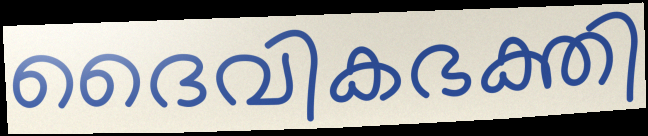
ദൈവികഭക്തി